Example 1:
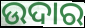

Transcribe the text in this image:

ଉଦାର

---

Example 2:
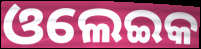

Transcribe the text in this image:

ଓଲେଇକ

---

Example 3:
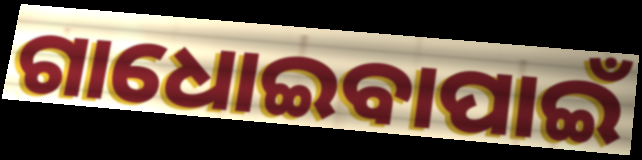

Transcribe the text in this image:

ଗାଧୋଇବାପାଇଁ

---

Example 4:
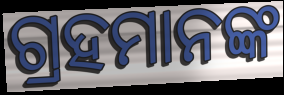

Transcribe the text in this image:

ଗ୍ରହମାନଙ୍କ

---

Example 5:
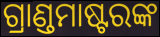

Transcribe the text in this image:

ଗ୍ରାଣ୍ଡମାଷ୍ଟରଙ୍କ